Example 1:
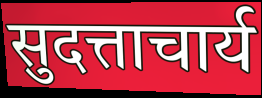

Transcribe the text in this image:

सुदत्ताचार्य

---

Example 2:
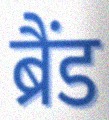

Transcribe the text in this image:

ब्रैंड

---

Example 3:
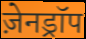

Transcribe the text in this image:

ज़ेनड्रॉप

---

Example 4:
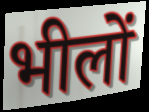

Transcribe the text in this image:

भीलों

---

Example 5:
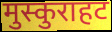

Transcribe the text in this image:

मुस्कुराहट